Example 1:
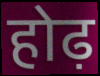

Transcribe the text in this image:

होढ़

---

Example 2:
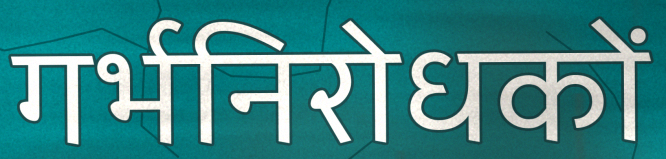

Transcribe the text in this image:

गर्भनिरोधकों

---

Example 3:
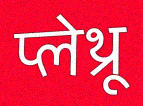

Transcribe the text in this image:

प्लेथ्रू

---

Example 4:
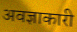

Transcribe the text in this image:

अवज्ञाकारी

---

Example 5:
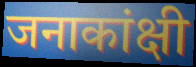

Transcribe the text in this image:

जनाकांक्षी